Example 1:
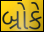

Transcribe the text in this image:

બ્રોકે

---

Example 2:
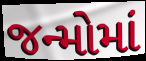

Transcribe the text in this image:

જન્મોમાં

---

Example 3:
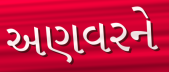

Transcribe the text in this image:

અણવરને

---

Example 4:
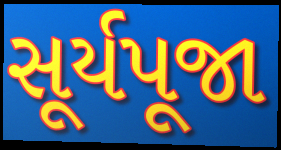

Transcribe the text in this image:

સૂર્યપૂજા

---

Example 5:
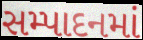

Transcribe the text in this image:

સમ્પાદનમાં